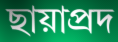
ছায়াপ্রদ